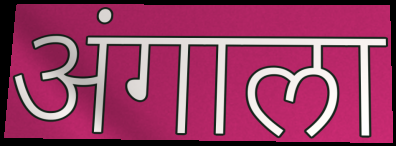
अंगाला